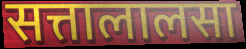
सत्तालालसा